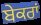
ਬੇਕਰਾਂ